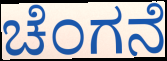
ಚೆಂಗನೆ